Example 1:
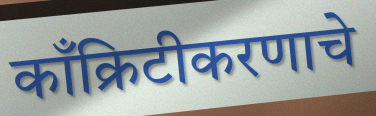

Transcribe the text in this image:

काँक्रिटीकरणाचे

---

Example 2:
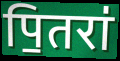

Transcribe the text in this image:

पि॒तरा॑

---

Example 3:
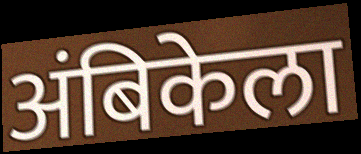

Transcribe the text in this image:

अंबिकेला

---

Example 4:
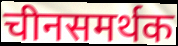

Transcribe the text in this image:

चीनसमर्थक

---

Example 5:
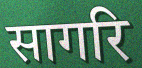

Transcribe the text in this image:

सागरि